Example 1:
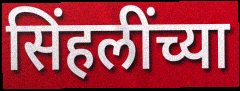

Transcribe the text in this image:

सिंहलींच्या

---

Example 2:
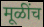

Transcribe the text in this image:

मूळींच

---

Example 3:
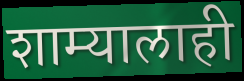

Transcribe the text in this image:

शाम्यालाही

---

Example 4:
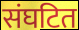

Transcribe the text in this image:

संघटित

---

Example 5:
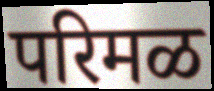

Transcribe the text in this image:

परिमळ